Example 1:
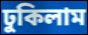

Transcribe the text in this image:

ঢুকিলাম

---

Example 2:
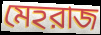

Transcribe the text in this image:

মেহরাজ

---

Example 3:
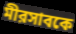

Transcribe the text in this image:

মীরসাবকে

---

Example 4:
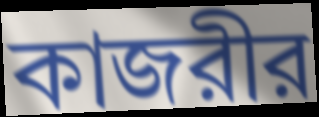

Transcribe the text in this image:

কাজরীর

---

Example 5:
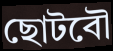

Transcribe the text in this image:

ছোটবৌ